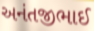
અનંતજીભાઈ